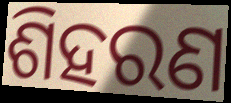
ଶିହରଣ